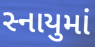
સ્નાયુમાં